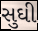
સુઘી